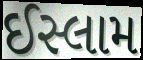
ઈસ્લામ